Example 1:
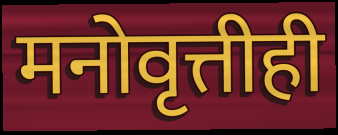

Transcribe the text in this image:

मनोवृत्तीही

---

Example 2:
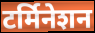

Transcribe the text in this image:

टर्मिनेशन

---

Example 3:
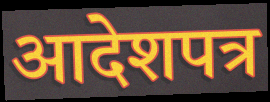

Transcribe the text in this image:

आदेशपत्र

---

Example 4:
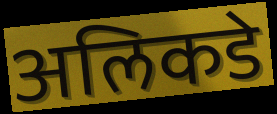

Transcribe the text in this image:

अलिकडे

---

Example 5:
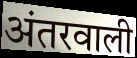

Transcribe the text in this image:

अंतरवाली